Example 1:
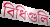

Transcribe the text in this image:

বিধিগুলি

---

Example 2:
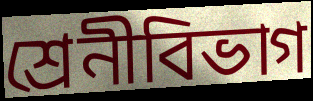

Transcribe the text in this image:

শ্রেনীবিভাগ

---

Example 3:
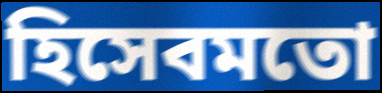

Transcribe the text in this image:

হিসেবমতো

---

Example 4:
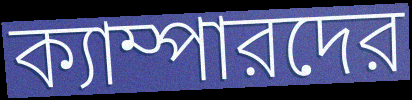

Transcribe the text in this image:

ক্যাম্পারদের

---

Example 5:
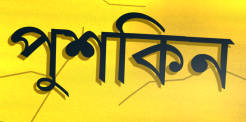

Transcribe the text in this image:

পুশকিন